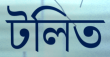
টলিত